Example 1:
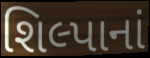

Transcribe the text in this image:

શિલ્પાનાં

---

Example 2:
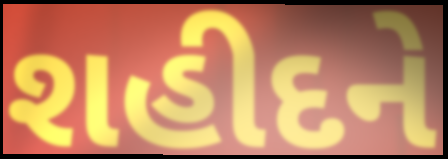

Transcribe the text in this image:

શહીદને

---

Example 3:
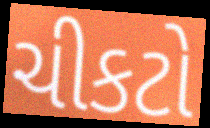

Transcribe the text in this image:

ચીકટો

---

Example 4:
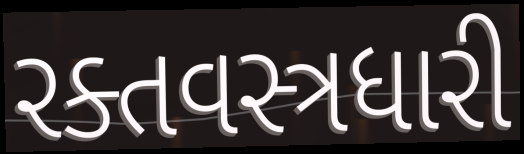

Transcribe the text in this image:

રક્તવસ્ત્રધારી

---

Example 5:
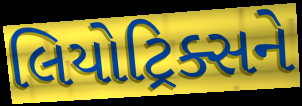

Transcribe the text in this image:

લિયોટ્રિક્સને